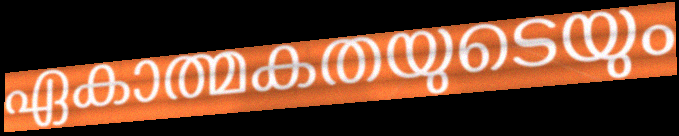
ഏകാത്മകതയുടെയും